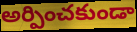
అర్పించకుండా